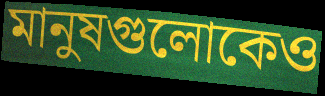
মানুষগুলোকেও